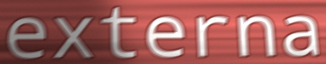
externa